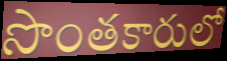
సొంతకారులో